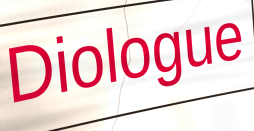
Diologue